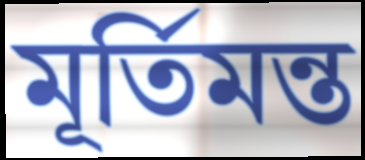
মূর্তিমন্ত